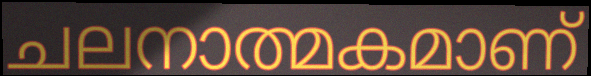
ചലനാത്മകമാണ്